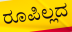
ರೂಪಿಲ್ಲದ